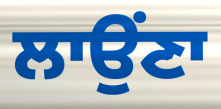
ਲਾਉਂਣਾ